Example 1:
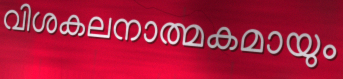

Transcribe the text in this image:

വിശകലനാത്മകമായും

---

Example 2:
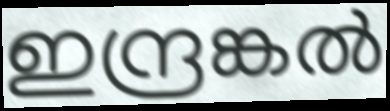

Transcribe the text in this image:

ഇന്ദ്രങ്കൽ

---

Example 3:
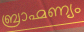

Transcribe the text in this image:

ബ്രാഹ്മണ്യം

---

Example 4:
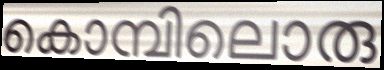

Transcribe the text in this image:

കൊമ്പിലൊരു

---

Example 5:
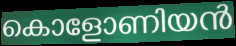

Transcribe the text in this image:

കൊളോണിയൻ